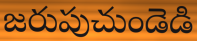
జరుపుచుండెడి